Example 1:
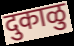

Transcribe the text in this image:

दुकाळु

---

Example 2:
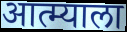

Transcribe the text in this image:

आत्म्याला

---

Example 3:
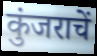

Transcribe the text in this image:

कुंजराचें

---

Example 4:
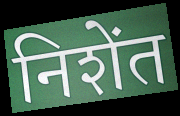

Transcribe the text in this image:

निशेंत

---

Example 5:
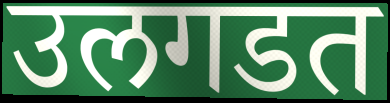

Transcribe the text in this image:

उलगडत